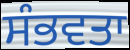
ਸੰਭਵਤਾ